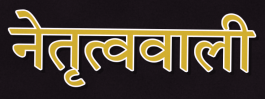
नेतृत्ववाली